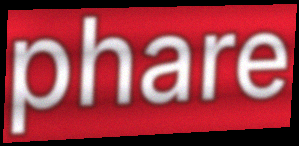
phare